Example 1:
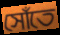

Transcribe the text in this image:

সোঁতে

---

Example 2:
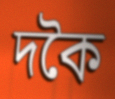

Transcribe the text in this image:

দকৈ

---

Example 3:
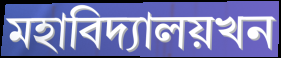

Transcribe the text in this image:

মহাবিদ্যালয়খন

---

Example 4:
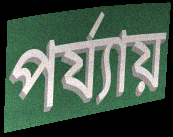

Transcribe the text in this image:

পৰ্য্যায়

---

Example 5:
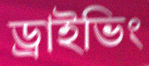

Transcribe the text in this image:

ড্ৰাইভিং